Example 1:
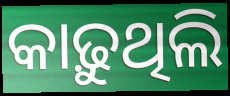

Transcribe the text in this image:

କାଢ଼ୁଥିଲି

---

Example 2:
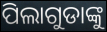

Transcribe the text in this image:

ପିଲାଗୁଡାଙ୍କୁ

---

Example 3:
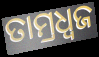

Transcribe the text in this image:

ତାମ୍ରଧ୍ୱଜ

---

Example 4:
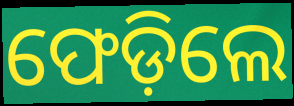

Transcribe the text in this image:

ଫେଡ଼ିଲେ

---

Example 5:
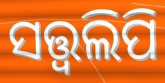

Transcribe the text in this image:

ସତ୍ତ୍ୱଲିପି